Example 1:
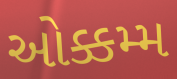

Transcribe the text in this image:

ઓક્કમ્મ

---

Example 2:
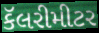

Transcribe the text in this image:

કૅલરીમીટર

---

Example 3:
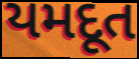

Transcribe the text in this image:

યમદૂત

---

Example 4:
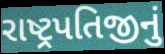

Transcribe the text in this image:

રાષ્ટ્રપતિજીનું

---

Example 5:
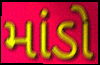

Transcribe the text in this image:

માંડો